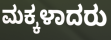
ಮಕ್ಕಳಾದರು